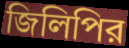
জিলিপির